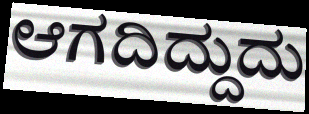
ಆಗದಿದ್ದುದು